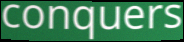
conquers